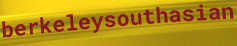
berkeleysouthasian